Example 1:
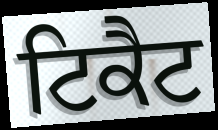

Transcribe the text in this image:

ਟਿਕੈਟ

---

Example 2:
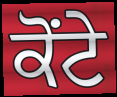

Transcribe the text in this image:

ਕੋਂਟੇ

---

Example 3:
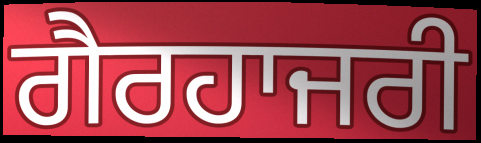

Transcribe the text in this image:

ਗੈਰਹਾਜਰੀ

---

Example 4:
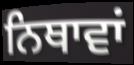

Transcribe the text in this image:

ਨਿਥਾਵਾਂ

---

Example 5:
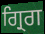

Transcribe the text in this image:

ਗ੍ਰਿਗ